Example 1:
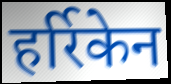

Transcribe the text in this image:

हर्रिकेन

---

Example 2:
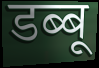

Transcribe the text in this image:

डब्बू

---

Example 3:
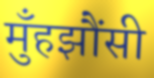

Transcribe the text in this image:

मुँहझौंसी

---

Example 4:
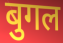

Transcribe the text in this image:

बुगल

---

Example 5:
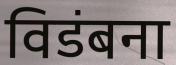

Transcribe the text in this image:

विडंबना